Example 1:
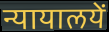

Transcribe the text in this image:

न्यायालयें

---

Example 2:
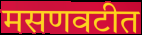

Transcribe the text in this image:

मसणवटीत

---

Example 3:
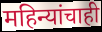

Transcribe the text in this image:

महिन्यांचाही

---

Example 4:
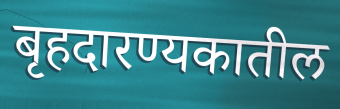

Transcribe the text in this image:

बृहदारण्यकातील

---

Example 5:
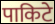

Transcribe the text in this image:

पाकिटे